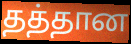
தத்தான